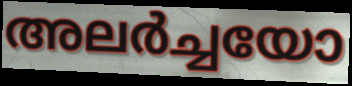
അലർച്ചയോ